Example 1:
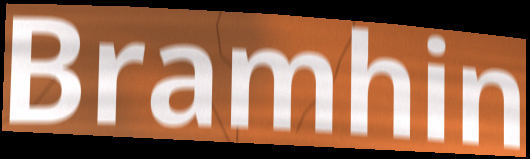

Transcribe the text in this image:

Bramhin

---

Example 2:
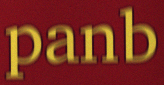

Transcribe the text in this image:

panb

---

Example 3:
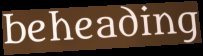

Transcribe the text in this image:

beheading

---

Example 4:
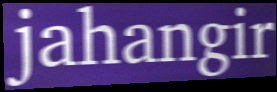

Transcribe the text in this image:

jahangir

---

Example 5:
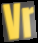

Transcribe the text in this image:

Vr